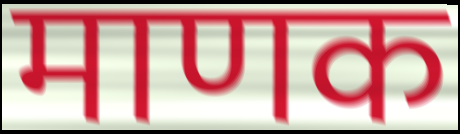
माणक